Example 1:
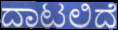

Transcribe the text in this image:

ದಾಟಲಿದೆ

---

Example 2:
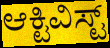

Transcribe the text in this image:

ಆಕ್ಟಿವಿಸ್ಟ್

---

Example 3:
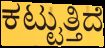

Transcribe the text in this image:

ಕಟ್ಟುತ್ತಿದೆ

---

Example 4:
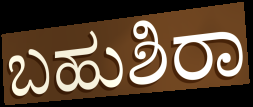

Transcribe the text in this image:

ಬಹುಶಿರಾ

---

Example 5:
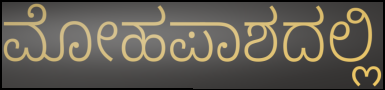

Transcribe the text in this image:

ಮೋಹಪಾಶದಲ್ಲಿ